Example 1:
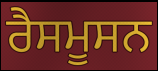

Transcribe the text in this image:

ਰੈਸਮੂਸਨ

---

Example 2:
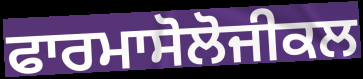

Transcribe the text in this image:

ਫਾਰਮਾਸੋਲੋਜੀਕਲ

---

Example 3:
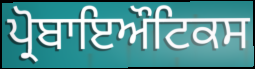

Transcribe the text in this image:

ਪ੍ਰੋਬਾਇਔਟਿਕਸ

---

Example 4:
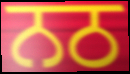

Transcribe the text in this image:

ਨਠ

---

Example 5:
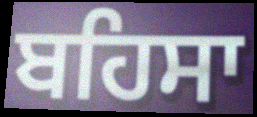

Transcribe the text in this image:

ਬਹਿਸਾ